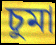
চুমা